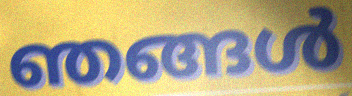
ഞങ്ങൾ